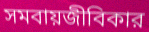
সমবায়জীবিকার